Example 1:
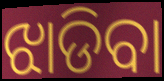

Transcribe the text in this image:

ଝାଡିବା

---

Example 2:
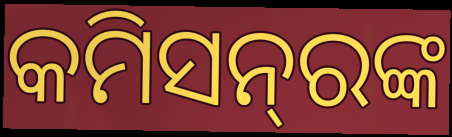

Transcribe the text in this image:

କମିସନ୍‍ରଙ୍କ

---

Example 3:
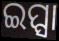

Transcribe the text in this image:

ଇପ୍ସା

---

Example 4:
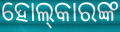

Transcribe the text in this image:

ହୋଲ୍‍କାରଙ୍କ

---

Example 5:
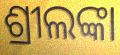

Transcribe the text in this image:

ଶ୍ରୀଲଙ୍କା